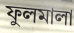
ফুলমালা